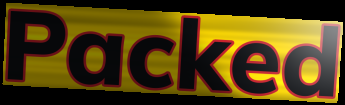
Packed